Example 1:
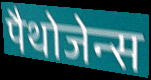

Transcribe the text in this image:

पैथोजेन्स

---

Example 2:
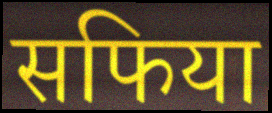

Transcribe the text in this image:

सफिया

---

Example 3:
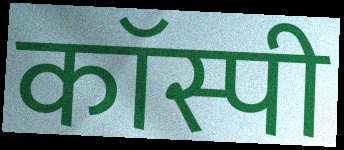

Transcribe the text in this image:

कॉस्पी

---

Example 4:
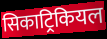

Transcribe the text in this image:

सिकाट्रिकियल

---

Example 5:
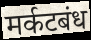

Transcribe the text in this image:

मर्कटबंध